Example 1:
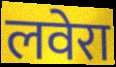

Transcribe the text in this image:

लवेरा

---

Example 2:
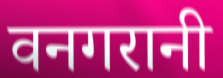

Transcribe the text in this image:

वनगरानी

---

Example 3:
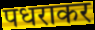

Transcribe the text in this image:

पधराकर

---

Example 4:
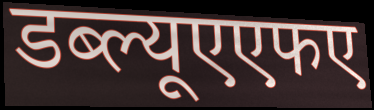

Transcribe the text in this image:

डब्ल्यूएएफए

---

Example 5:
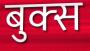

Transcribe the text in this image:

बुक्‍स